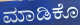
ಮಾಡಿಕೊ